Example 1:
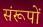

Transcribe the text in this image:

संरूपों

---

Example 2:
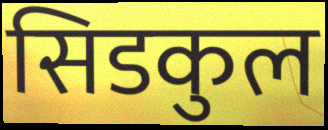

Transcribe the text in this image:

सिडकुल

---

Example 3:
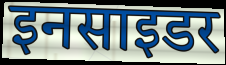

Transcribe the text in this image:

इनसाइडर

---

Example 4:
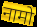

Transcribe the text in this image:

नामो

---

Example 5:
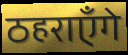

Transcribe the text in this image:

ठहराएँगे